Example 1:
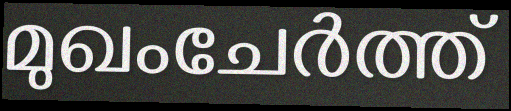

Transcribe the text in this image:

മുഖംചേർത്ത്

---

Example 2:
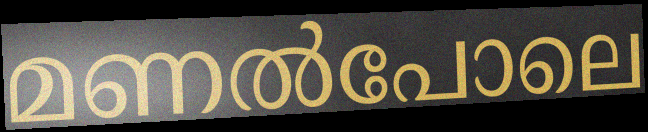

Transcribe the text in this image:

മണൽപോലെ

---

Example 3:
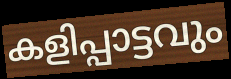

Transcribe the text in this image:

കളിപ്പാട്ടവും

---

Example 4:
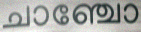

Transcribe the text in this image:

ചാഞ്ചോ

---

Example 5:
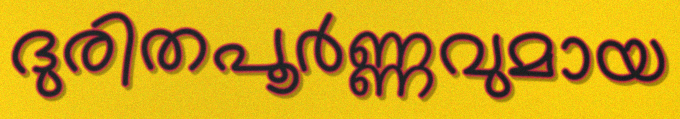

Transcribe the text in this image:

ദുരിതപൂർണ്ണവുമായ